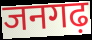
जनगढ़